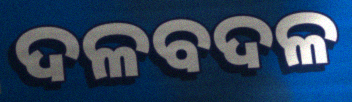
ଦଳବଦଳ